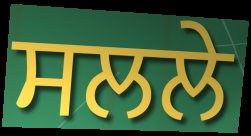
ਸਲਲੇ